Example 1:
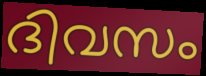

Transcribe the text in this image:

ദിവസം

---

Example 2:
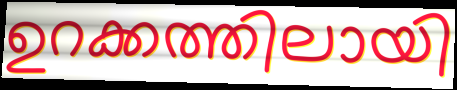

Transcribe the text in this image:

ഉറക്കത്തിലായി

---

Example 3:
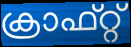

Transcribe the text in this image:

ക്രാഫ്റ്റ്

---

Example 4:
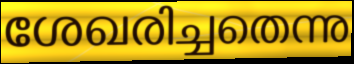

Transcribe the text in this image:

ശേഖരിച്ചതെന്നു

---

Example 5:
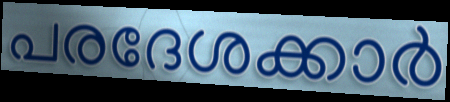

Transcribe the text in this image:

പരദേശക്കാർ